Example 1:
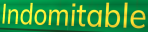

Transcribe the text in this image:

Indomitable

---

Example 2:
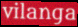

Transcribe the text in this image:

vilanga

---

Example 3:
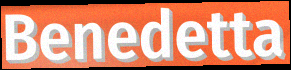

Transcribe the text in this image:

Benedetta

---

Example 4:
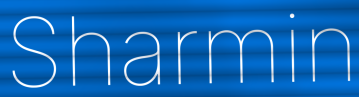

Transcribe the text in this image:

Sharmin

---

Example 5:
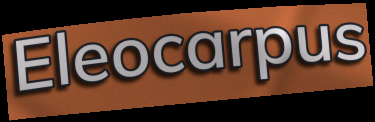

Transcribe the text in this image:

Eleocarpus